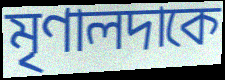
মৃণালদাকে